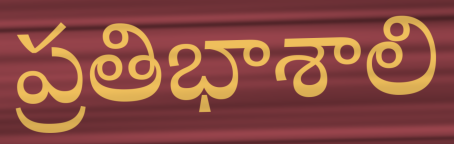
ప్రతిభాశాలి